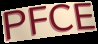
PFCE